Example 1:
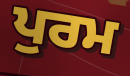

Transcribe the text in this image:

ਪੁਰਮ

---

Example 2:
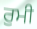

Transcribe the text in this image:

ਰੁਮੀ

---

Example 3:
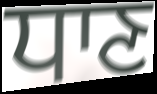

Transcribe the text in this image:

ਧਾਣ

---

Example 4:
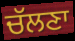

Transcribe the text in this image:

ਚੱਲਣਾ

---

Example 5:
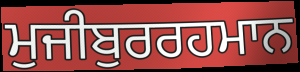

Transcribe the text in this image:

ਮੁਜੀਬੁਰਰਹਮਾਨ